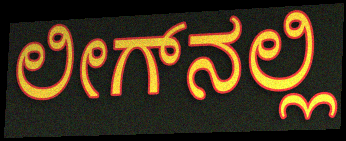
ಲೀಗ್‌ನಲ್ಲಿ